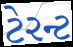
ટેરન્ટ